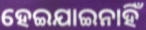
ହେଇଯାଇନାହିଁ